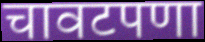
चावटपणा